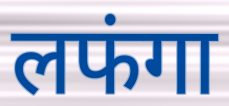
लफंगा